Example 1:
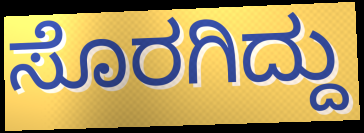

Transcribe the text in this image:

ಸೊರಗಿದ್ದು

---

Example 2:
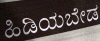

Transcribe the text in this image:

ಹಿಡಿಯಬೇಡ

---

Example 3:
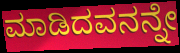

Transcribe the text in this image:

ಮಾಡಿದವನನ್ನೇ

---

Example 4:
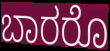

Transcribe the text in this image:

ಬಾರರೊ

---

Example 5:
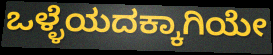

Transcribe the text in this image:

ಒಳ್ಳೆಯದಕ್ಕಾಗಿಯೇ